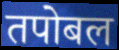
तपोबल